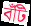
বঁটি